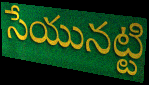
సేయునట్టి